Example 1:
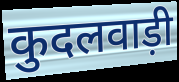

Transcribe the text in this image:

कुदलवाड़ी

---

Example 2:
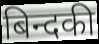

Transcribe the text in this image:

बिन्दकी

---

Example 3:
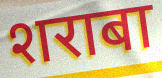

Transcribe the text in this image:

शराबा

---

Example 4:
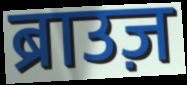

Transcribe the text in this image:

ब्राउज़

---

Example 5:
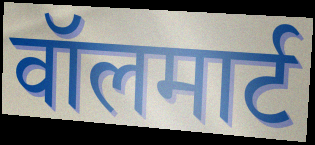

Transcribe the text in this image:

वॉलमार्ट